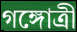
গঙ্গোত্রী